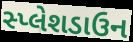
સ્પ્લેશડાઉન